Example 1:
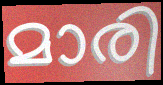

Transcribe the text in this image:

മാരി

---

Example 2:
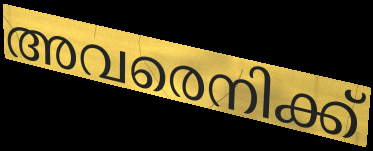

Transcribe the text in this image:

അവരെനിക്ക്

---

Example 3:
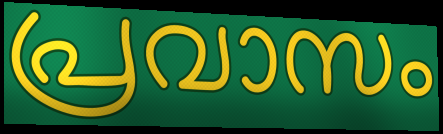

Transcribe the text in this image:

പ്രവാസം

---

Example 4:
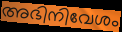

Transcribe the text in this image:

അഭിനിവേശം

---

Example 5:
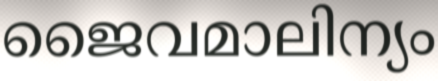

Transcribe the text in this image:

ജൈവമാലിന്യം